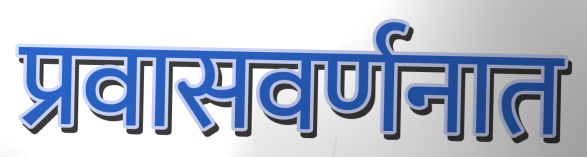
प्रवासवर्णनात